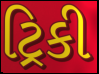
ટ્રિકી